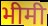
भीमी